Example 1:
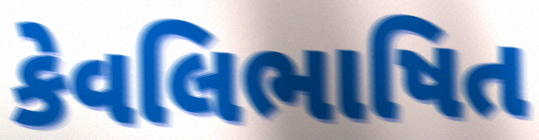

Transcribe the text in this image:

કેવલિભાષિત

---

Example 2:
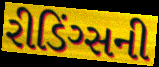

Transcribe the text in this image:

રીડિંગ્સની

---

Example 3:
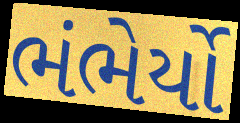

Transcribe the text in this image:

ભંભેર્યો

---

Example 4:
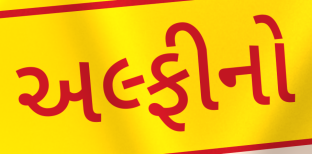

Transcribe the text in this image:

અલ્ફીનો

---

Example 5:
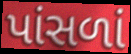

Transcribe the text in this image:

પાંસળાં